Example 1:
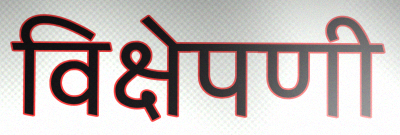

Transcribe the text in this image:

विक्षेपणी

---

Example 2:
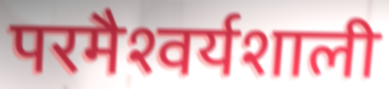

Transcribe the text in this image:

परमैश्वर्यशाली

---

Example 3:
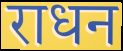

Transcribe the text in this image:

राधन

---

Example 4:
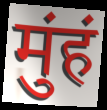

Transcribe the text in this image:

मुंहं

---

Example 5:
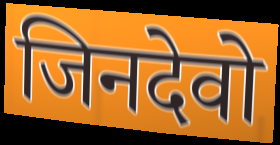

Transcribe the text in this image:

जिनदेवो